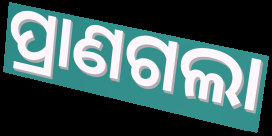
ପ୍ରାଣଗଲା